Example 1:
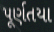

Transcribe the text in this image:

પૂર્ણતયા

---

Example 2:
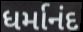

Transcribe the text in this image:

ધર્માનંદ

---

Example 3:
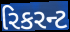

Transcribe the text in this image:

રિકરન્ટ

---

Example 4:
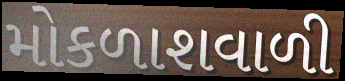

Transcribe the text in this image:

મોકળાશવાળી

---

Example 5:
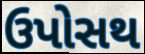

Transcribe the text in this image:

ઉપોસથ